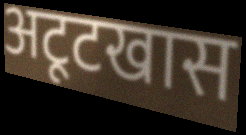
अटूटखास